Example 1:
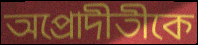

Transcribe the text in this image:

অপ্রোদীতীকে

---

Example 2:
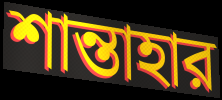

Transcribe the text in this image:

শান্তাহার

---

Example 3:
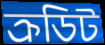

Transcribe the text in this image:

ক্রডিট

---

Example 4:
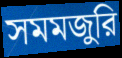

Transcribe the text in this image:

সমমজুরি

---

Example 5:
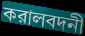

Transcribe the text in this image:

করালবদনী